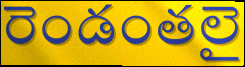
రెండంతలై